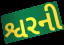
શ્વરની